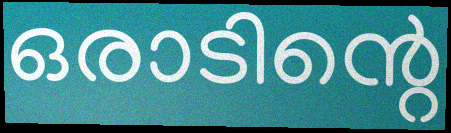
ഒരാടിന്റെ